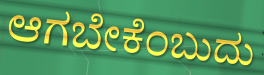
ಆಗಬೇಕೆಂಬುದು